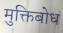
मुक्तिबोध